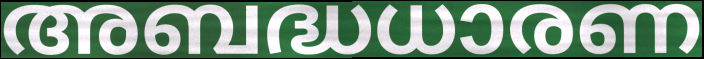
അബദ്ധധാരണ